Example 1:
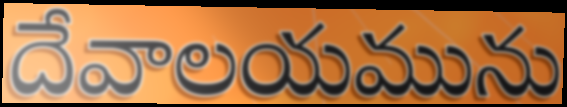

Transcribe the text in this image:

దేవాలయమును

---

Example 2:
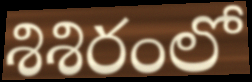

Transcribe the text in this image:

శిశిరంలో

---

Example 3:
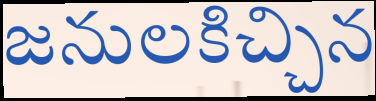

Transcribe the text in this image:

జనులకిచ్చిన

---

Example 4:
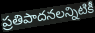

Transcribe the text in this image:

ప్రతిపాదనలన్నిటికీ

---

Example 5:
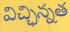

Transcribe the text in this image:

విచ్ఛిన్నత